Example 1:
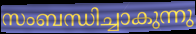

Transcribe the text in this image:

സംബന്ധിച്ചാകുന്നു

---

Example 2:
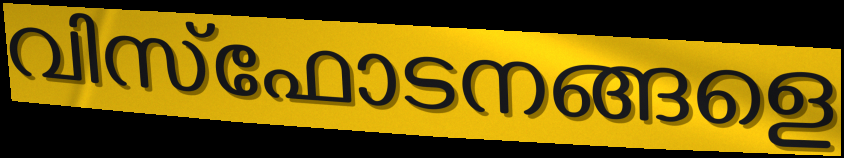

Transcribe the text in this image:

വിസ്ഫോടനങ്ങളെ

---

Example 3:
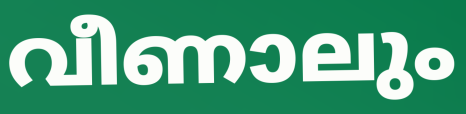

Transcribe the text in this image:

വീണാലും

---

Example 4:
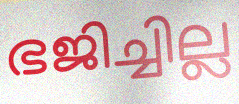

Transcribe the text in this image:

ഭജിച്ചില്ല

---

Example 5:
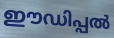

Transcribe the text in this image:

ഈഡിപ്പൽ